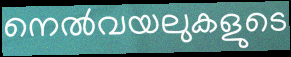
നെൽവയലുകളുടെ